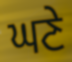
ਘਣੇ